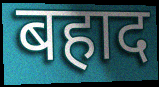
बहाद